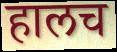
हालच